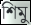
শিমু